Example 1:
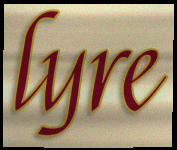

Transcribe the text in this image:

lyre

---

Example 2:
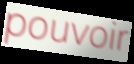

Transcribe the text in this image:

pouvoir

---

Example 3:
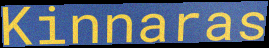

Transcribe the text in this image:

Kinnaras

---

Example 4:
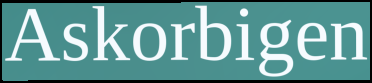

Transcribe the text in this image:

Askorbigen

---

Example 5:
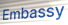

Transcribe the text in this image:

Embassy